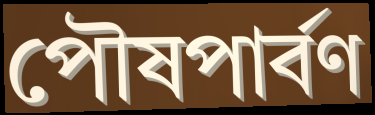
পৌষপার্বণ